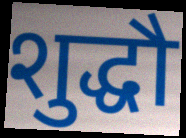
शुद्धौ